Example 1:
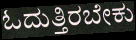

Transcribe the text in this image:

ಓದುತ್ತಿರಬೇಕು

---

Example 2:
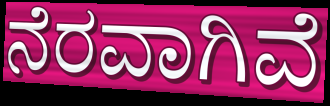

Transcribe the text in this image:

ನೆರವಾಗಿವೆ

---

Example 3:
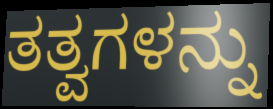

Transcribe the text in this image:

ತತ್ವಗಳನ್ನು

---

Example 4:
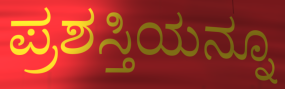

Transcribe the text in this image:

ಪ್ರಶಸ್ತಿಯನ್ನೂ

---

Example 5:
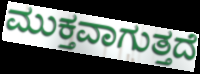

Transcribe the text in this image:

ಮುಕ್ತವಾಗುತ್ತದೆ